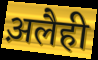
अ़लैही